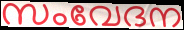
സംവേദന